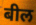
बील